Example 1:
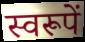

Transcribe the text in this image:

स्वरूपें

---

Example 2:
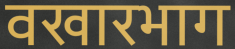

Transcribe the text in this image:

वखारभाग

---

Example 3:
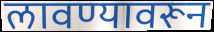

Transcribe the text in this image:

लावण्यावरून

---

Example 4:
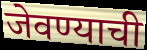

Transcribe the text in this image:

जेवण्याची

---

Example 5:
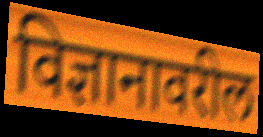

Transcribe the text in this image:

विज्ञानावरील